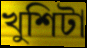
খুশিটা